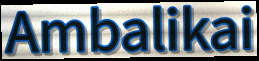
Ambalikai